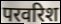
परवरिश